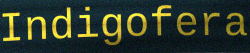
Indigofera